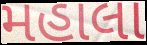
મહાલા